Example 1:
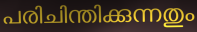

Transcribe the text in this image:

പരിചിന്തിക്കുന്നതും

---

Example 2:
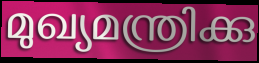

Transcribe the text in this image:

മുഖ്യമന്ത്രിക്കു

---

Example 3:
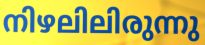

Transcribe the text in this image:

നിഴലിലിരുന്നു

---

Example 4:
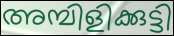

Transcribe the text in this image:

അമ്പിളിക്കുട്ടി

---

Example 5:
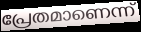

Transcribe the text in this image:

പ്രേതമാണെന്ന്